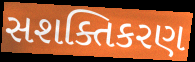
સશક્તિકરણ